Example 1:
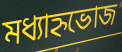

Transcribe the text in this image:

মধ্যাহ্নভোজ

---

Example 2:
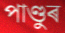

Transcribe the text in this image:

পাণ্ডুৰ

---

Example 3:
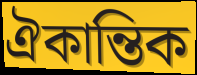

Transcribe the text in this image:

ঐকান্তিক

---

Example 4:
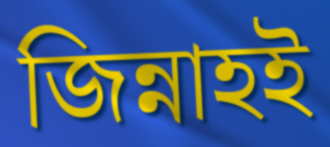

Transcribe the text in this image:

জিন্নাহই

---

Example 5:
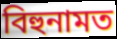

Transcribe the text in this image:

বিহুনামত